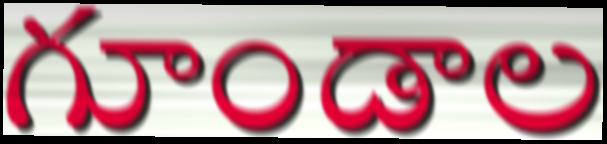
గూండాల